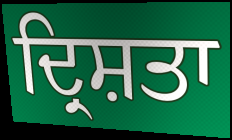
ਦ੍ਰਿਸ਼ਤਾ